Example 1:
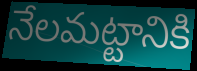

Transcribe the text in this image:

నేలమట్టానికి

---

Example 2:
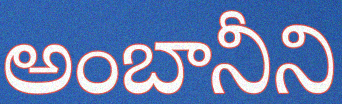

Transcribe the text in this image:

అంబానీని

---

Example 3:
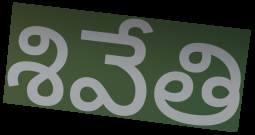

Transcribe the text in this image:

శివేతి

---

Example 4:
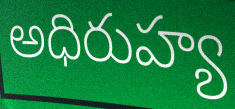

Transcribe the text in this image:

అధిరుహ్య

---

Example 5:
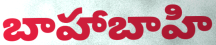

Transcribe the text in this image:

బాహాబాహి